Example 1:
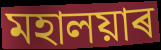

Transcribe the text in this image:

মহালয়াৰ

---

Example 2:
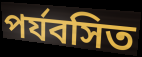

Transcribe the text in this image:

পৰ্যবসিত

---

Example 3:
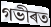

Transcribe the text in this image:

গভীৰত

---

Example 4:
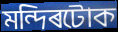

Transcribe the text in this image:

মন্দিৰটোক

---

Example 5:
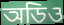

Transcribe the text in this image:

অডিও